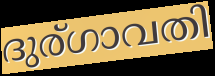
ദുര്ഗാവതി